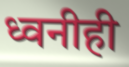
ध्वनीही